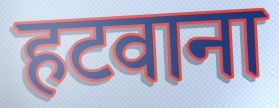
हटवाना